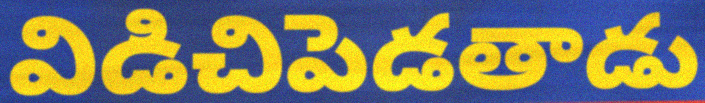
విడిచిపెడతాడు